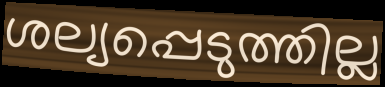
ശല്യപ്പെടുത്തില്ല